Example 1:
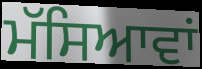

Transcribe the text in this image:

ਮੱਸਿਆਵਾਂ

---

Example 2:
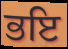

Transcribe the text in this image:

ਭਇ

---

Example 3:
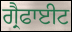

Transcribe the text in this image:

ਗ੍ਰੈਫਾਈਟ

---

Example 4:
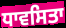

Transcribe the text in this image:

ਧਾਵਸਿਤਾ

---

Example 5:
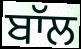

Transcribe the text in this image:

ਬਾੱਲ